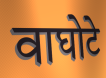
वाघोटे